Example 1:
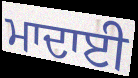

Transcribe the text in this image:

ਮਾਦਾਈ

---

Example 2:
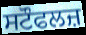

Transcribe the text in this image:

ਸਟੌਫਲਜ਼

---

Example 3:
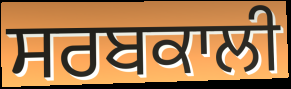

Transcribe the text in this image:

ਸਰਬਕਾਲੀ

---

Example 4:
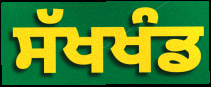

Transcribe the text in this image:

ਸੱਖਖੰਡ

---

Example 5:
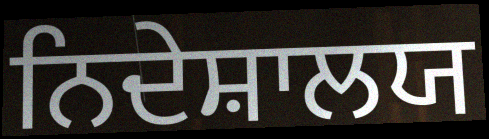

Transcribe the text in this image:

ਨਿਦੇਸ਼ਾਲਯ